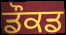
ਡੌਕਡ